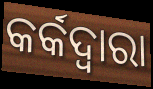
କର୍କଦ୍ଵାରା